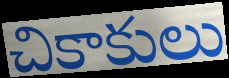
చికాకులు